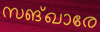
സങ്ഖാരേ